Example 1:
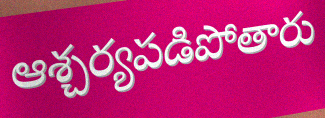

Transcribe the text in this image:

ఆశ్చర్యపడిపోతారు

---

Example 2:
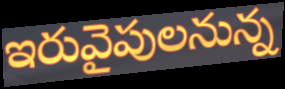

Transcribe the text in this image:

ఇరువైపులనున్న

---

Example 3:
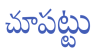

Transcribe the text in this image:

చూపట్టు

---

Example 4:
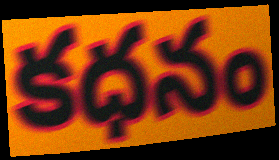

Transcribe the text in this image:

కధనం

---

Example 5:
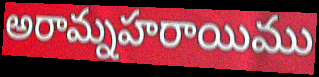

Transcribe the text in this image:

అరామ్నహరాయిము